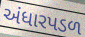
અંધારપડળ